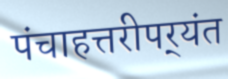
पंचाहत्तरीपर्यंत